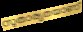
സുതാര്യതയാണ്